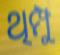
ଥିମ୍ପୁ